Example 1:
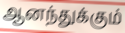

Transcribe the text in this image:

ஆனந்துக்கும்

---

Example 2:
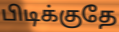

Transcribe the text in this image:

பிடிக்குதே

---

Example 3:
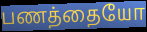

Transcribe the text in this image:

பணத்தையோ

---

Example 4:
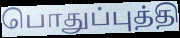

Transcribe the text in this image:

பொதுப்புத்தி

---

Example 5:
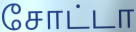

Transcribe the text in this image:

சோட்டா